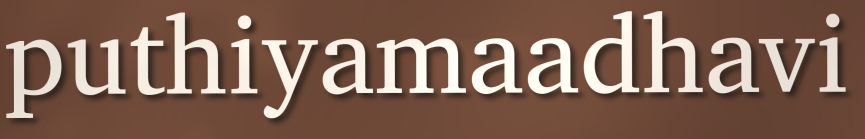
puthiyamaadhavi